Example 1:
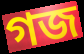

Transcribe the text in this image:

গজ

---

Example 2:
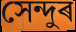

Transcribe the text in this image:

সেন্দুৰ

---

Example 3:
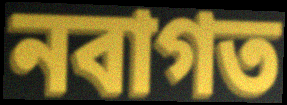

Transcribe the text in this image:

নবাগত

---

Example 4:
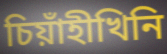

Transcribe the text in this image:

চিয়াঁহীখিনি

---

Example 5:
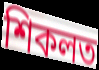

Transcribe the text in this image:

শিকলত